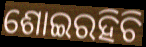
ଶୋଇରହିଚି